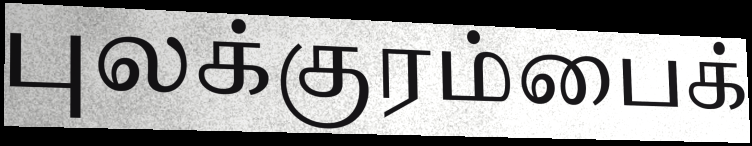
புலக்குரம்பைக்